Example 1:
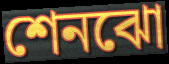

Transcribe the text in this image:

শেনঝো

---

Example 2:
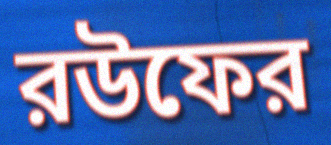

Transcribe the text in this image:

রউফের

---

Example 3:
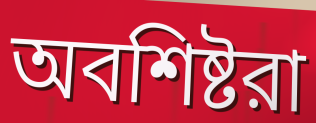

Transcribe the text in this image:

অবশিষ্টরা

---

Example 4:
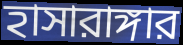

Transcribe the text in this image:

হাসারাঙ্গার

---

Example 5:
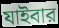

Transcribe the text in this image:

যাইবার